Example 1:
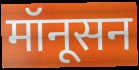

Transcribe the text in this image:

मॉनूसन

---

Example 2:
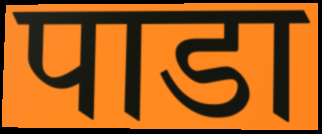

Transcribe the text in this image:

पाडा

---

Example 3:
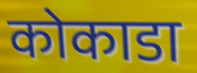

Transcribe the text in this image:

कोकाडा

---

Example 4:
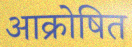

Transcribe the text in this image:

आक्रोषित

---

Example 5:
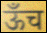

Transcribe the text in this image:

ऊँच